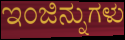
ಇಂಜಿನ್ನುಗಳು